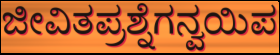
ಜೀವಿತಪ್ರಶ್ನೆಗನ್ವಯಿಪ